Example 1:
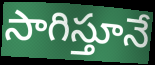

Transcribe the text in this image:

సాగిస్తూనే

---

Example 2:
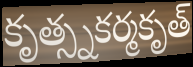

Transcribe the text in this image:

కృత్స్నకర్మకృత్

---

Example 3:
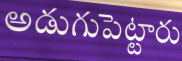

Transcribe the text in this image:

అడుగుపెట్టారు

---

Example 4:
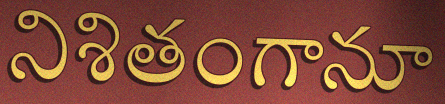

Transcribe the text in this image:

నిశితంగానూ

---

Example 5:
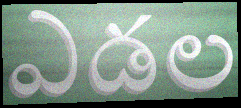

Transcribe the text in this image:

ఎడల